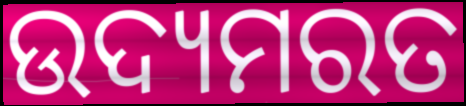
ଉଦ୍ୟମରତ